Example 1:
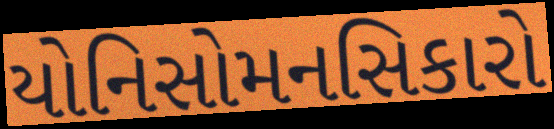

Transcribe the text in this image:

યોનિસોમનસિકારો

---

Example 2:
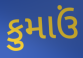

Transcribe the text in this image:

કુમાઉં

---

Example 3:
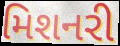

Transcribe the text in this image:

મિશનરી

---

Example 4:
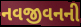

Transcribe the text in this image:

નવજીવનની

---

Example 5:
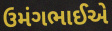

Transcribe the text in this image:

ઉમંગભાઈએ